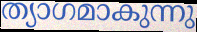
ത്യാഗമാകുന്നു